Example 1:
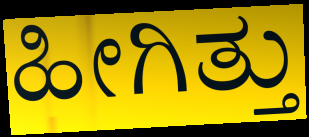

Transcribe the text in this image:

ಹೀಗಿತ್ತು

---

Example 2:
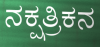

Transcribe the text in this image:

ನಕ್ಷತ್ರಿಕನ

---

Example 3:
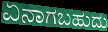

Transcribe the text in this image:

ಏನಾಗಬಹುದು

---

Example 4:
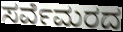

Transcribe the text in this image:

ಸರ್ವೆಮರದ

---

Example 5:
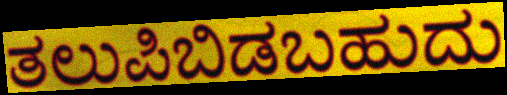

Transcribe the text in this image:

ತಲುಪಿಬಿಡಬಹುದು